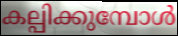
കല്പിക്കുമ്പോൾ